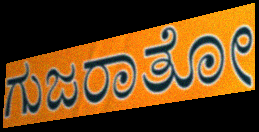
ಗುಜರಾತೋ